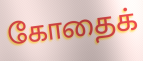
கோதைக்